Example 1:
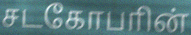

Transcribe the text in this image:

சடகோபரின்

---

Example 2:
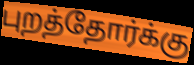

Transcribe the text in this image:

புறத்தோர்க்கு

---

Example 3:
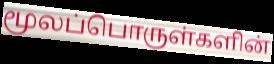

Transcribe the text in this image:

மூலப்பொருள்களின்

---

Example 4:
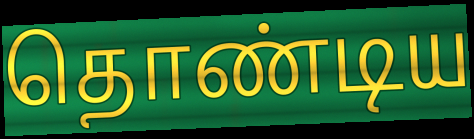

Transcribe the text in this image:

தொண்டிய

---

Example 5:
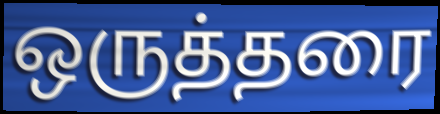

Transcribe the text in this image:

ஒருத்தரை